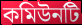
কমিউনটি